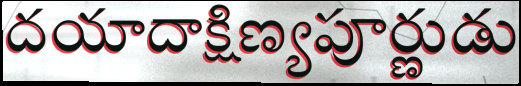
దయాదాక్షిణ్యపూర్ణుడు